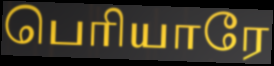
பெரியாரே